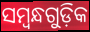
ସମ୍ବନ୍ଧଗୁଡ଼ିକ